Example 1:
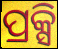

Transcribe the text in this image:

ପ୍ରକ୍ସି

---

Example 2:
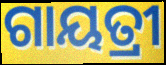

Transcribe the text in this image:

ଗାୟତ୍ରୀ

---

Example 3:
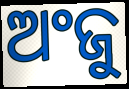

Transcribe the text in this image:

ଅଂଜୁ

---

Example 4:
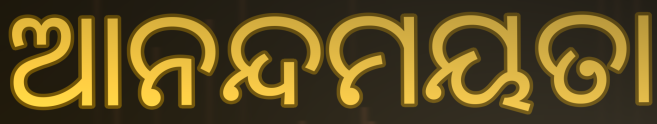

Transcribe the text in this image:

ଆନନ୍ଦମୟତା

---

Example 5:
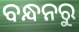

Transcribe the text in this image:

ବନ୍ଧନରୁ